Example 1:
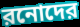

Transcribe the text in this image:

রনোদের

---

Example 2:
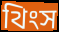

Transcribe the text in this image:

থিংস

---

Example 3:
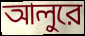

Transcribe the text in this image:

আলুরে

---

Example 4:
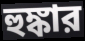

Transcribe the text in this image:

হুঙ্কার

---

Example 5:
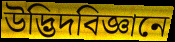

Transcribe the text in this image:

উদ্ভিদবিজ্ঞানে